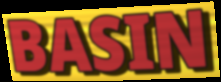
BASIN